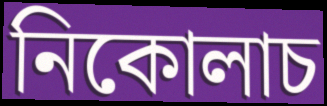
নিকোলাচ